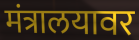
मंत्रालयावर